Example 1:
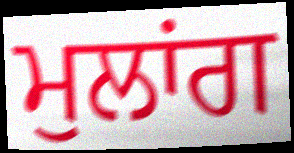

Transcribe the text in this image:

ਮੁਲਾਂਗ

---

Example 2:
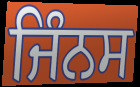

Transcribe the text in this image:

ਜਿੰਨਸ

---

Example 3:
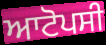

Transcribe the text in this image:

ਆਟੋਪਸੀ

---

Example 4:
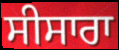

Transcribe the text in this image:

ਸੀਸਾਰਾ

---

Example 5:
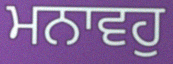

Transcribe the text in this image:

ਮਨਾਵਹੁ